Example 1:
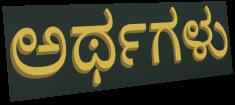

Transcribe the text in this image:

ಅರ್ಥಗಳು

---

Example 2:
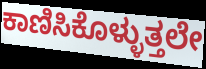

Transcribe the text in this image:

ಕಾಣಿಸಿಕೊಳ್ಳುತ್ತಲೇ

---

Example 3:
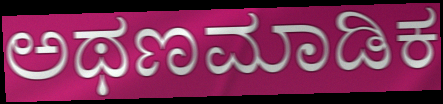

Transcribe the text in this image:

ಅಥಣಮಾಡಿಕ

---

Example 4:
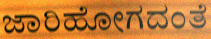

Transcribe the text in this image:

ಜಾರಿಹೋಗದಂತೆ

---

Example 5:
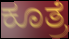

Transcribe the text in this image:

ಕೂತ್ರೆ